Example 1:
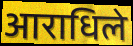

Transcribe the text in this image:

आराधिले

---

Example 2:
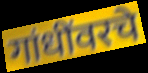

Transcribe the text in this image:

गांधींवरचे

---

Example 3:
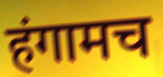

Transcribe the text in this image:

हंगामच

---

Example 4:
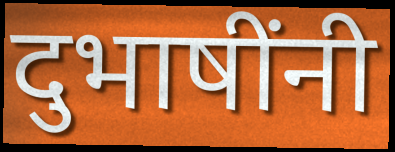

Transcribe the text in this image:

दुभाषींनी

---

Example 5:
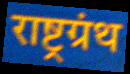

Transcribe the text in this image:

राष्ट्रग्रंथ